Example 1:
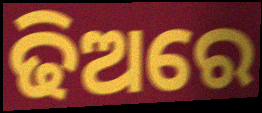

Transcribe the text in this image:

ଢିଅରେ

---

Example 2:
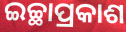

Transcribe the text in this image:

ଇଚ୍ଛାପ୍ରକାଶ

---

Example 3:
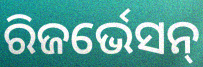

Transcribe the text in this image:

ରିଜର୍ଭେସନ୍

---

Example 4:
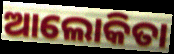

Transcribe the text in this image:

ଆଲୋକିତା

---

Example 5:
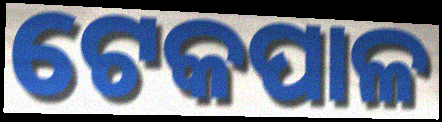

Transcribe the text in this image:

ଟେକପାଳ